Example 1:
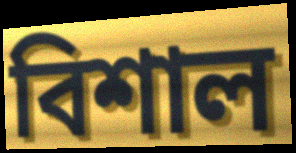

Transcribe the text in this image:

বিশাল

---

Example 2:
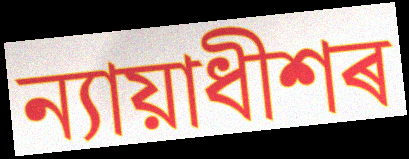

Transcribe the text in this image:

ন্যায়াধীশৰ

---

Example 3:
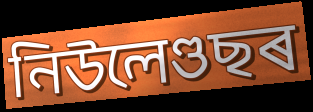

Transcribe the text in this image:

নিউলেণ্ডছৰ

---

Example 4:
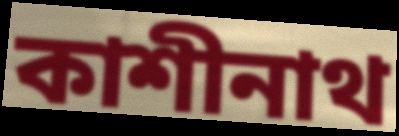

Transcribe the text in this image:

কাশীনাথ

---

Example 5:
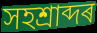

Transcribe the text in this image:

সহশ্ৰাব্দৰ